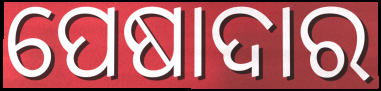
ପେଷାଦାର